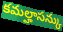
కమల్హాసన్కు